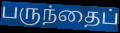
பருந்தைப்